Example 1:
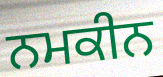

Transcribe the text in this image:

ਨਮਕੀਨ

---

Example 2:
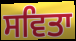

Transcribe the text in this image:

ਸਵਿਤਾ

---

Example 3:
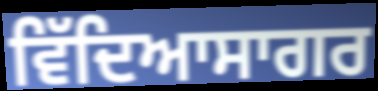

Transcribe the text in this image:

ਵਿੱਦਿਆਸਾਗਰ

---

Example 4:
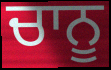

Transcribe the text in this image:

ਚਾਨੂ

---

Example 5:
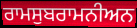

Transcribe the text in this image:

ਰਾਮਸੁਬਰਾਮਨੀਅਨ